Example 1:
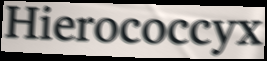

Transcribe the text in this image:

Hierococcyx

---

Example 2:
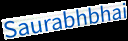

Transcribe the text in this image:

Saurabhbhai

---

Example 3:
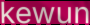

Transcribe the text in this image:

kewun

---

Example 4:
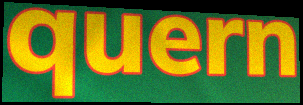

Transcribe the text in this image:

quern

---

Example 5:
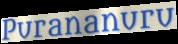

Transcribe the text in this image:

Purananuru